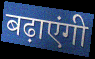
बढ़ाएंगी